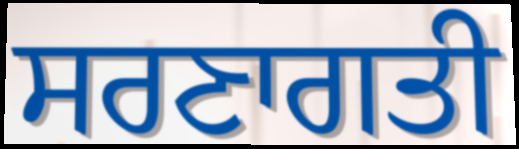
ਸਰਣਾਗਤੀ